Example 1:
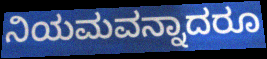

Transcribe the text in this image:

ನಿಯಮವನ್ನಾದರೂ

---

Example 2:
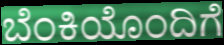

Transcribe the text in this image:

ಬೆಂಕಿಯೊಂದಿಗೆ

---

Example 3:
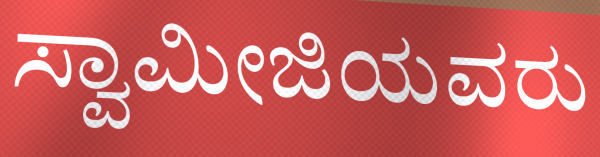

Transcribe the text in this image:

ಸ್ವಾಮೀಜಿಯವರು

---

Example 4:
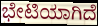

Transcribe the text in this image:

ಭೇಟಿಯಾಗಿದೆ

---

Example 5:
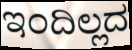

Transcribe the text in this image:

ಇಂದಿಲ್ಲದ